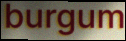
burgum